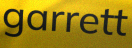
garrett